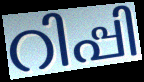
റിപ്പി